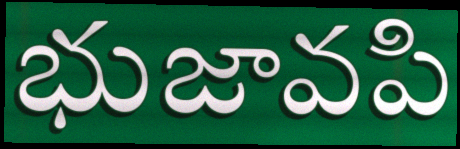
భుజావపి